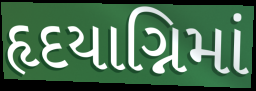
હૃદયાગ્નિમાં